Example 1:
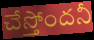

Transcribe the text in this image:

చేస్తోందనీ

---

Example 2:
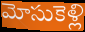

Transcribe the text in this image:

మోసుకెళ్లి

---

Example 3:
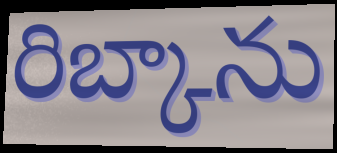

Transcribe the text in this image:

రిబ్కాను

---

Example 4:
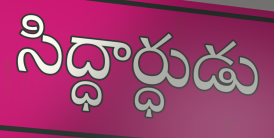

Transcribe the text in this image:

సిద్ధార్ధుడు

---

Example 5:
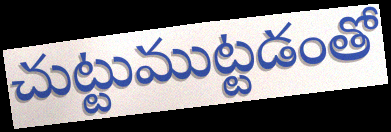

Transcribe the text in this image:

చుట్టుముట్టడంతో